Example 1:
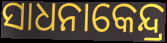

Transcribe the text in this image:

ସାଧନାକେନ୍ଦ୍ର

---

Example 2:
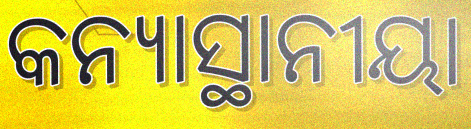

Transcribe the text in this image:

କନ୍ୟାସ୍ଥାନୀୟା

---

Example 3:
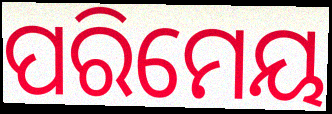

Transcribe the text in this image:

ପରିମେୟ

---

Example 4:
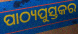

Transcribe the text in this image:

ପାଠ୍ୟପୁସ୍ତକର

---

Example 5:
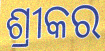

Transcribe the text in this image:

ଶ୍ରୀକର